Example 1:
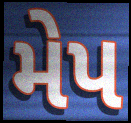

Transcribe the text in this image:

મેપ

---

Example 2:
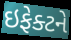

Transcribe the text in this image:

ઇફેક્ટને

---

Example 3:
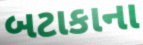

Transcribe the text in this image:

બટાકાના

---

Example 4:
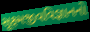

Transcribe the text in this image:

સૂક્ષ્મજીવવિજ્ઞાનનો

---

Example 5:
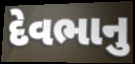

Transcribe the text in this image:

દેવભાનુ